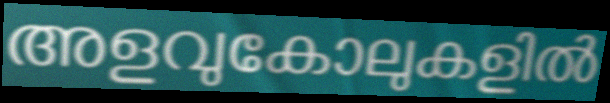
അളവുകോലുകളിൽ